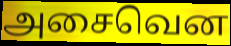
அசைவென